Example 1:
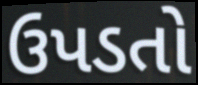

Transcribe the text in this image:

ઉપડતો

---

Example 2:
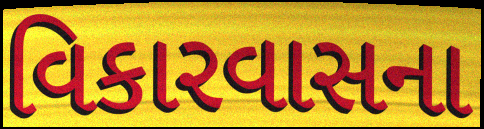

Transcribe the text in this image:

વિકારવાસના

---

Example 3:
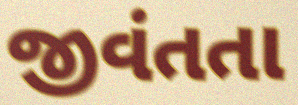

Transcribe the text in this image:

જીવંતતા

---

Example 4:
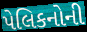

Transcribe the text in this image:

પેલિકનોની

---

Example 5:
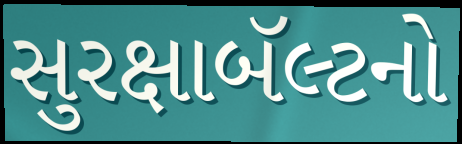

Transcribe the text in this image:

સુરક્ષાબૅલ્ટનો